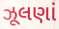
ઝૂલણાં